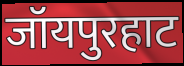
जॉयपुरहाट